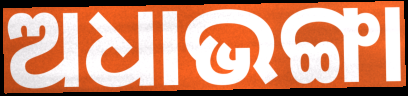
ଅଧାଭଙ୍ଗା